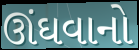
ઊંઘવાનો